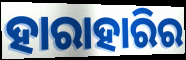
ହାରାହାରିର